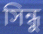
সিন্ধু